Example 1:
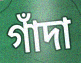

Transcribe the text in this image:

গাঁদা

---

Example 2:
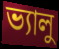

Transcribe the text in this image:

ভ্যালু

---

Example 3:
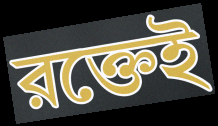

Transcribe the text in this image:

রক্তেই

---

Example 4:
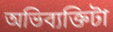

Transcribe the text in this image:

অভিব্যক্তিটা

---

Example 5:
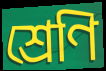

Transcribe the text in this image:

শ্রেণি